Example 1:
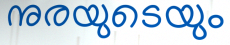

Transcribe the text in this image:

നുരയുടെയും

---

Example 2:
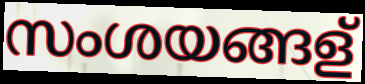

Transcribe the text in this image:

സംശയങ്ങള്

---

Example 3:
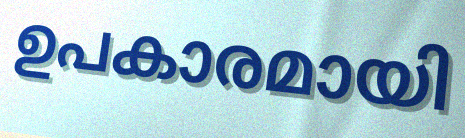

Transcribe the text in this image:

ഉപകാരമായി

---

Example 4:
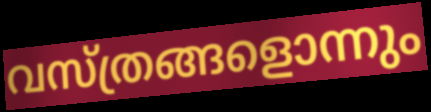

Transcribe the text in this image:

വസ്ത്രങ്ങളൊന്നും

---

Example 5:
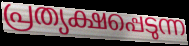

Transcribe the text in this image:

പ്രത്യക്ഷപ്പെടുന്ന